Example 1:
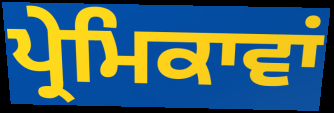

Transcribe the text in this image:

ਪ੍ਰੇਮਿਕਾਵਾਂ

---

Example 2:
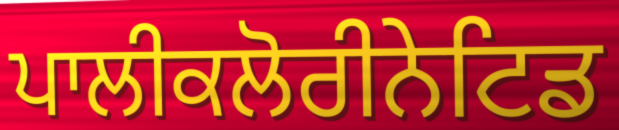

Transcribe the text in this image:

ਪਾਲੀਕਲੋਰੀਨੇਟਿਡ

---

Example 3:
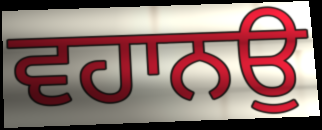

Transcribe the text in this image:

ਵਹਾਨਉ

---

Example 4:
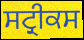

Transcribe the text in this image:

ਸਟ੍ਰੀਕਸ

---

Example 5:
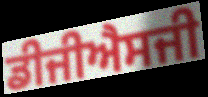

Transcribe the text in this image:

ਡੀਜੀਐਸਜੀ